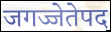
जगज्जेतेपद